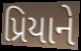
પ્રિયાને